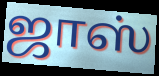
ஜாஸ்